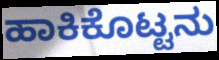
ಹಾಕಿಕೊಟ್ಟನು